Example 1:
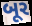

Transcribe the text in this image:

બૂર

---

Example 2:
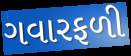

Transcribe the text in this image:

ગવારફળી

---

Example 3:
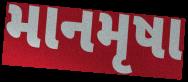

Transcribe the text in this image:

માનમૃષા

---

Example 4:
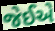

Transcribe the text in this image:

જેઈએ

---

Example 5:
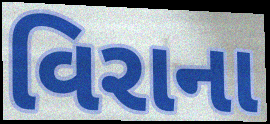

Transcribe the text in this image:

વિરાના